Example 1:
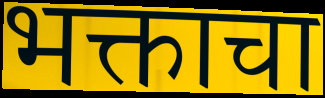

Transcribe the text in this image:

भक्ताचा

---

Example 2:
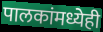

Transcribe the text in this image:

पालकांमध्येही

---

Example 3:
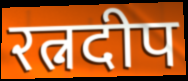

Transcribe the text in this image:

रत्नदीप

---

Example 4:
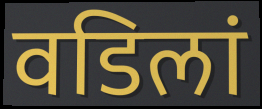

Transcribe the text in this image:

वडिलां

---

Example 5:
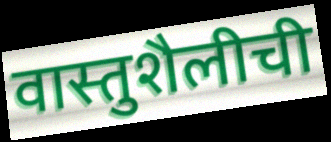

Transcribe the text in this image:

वास्तुशैलीची